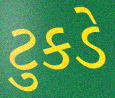
ટુકડે